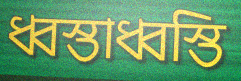
ধ্বস্তাধ্বস্তি